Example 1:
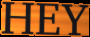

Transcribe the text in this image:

HEY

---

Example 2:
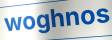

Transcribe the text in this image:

woghnos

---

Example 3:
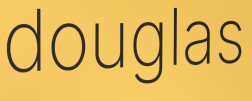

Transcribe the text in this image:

douglas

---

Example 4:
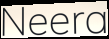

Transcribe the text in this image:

Neera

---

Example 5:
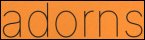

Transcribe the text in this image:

adorns